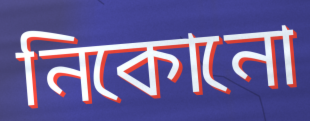
নিকোনো